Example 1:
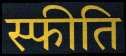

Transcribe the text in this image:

स्‍फीति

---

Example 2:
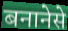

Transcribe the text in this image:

बनानेसे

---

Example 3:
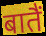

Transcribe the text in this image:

बातैं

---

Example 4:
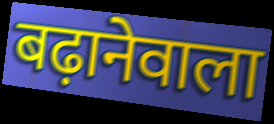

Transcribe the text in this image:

बढ़ानेवाला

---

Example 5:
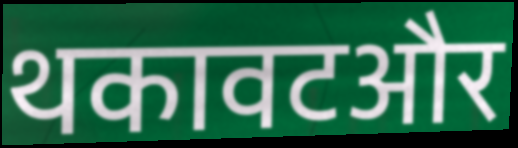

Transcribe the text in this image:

थकावटऔर